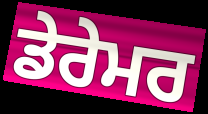
ਡੇਰੇਮਰ